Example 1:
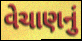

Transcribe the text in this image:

વેચાણનું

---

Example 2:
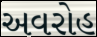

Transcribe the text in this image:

અવરોહ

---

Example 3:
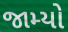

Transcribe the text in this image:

જામ્યો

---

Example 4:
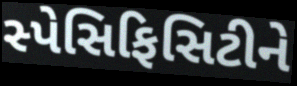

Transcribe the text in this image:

સ્પેસિફિસિટીને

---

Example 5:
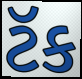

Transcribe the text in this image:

ટૅક